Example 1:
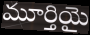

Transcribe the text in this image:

మూర్తియై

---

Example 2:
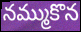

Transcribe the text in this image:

నమ్ముకొన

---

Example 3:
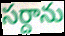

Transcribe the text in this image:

సర్దాను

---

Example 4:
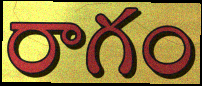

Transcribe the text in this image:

రాగం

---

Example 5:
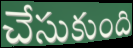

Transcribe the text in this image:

చేసుకుంది